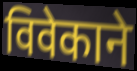
विवेकाने